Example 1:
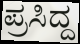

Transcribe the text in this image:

ಪ್ರಸಿದ್ದ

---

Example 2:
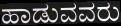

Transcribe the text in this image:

ಹಾಡುವವರು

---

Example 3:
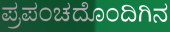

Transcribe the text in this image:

ಪ್ರಪಂಚದೊಂದಿಗಿನ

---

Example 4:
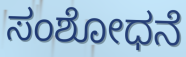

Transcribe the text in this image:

ಸಂಶೋಧನೆ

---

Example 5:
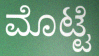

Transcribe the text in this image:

ಮೊಟ್ಟೆ